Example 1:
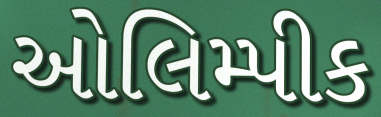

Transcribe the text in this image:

ઓલિમ્પીક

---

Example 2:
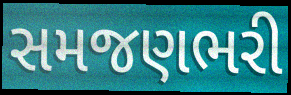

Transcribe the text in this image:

સમજણભરી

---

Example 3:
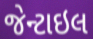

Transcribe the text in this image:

જેન્ટાઇલ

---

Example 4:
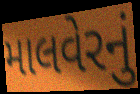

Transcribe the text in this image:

માલવેરનું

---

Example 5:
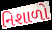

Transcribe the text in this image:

નિશાળો